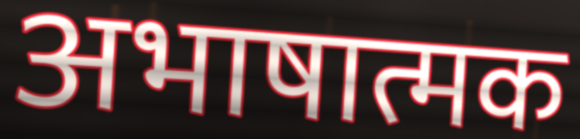
अभाषात्मक